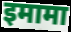
इमामा